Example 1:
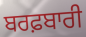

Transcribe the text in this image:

ਬਰਫ਼ਬਾਰੀ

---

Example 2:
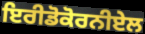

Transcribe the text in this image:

ਇਰੀਡੋਕੋਰਨੀਏਲ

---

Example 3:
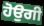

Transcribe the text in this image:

ਹੋਉਗੀ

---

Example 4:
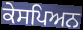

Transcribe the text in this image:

ਕੇਸਪਿਅਨ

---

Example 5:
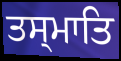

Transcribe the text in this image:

ਤਸ੍ਮਾਤਿ